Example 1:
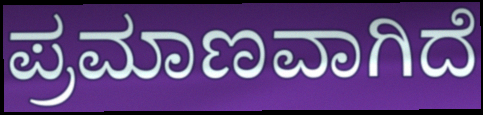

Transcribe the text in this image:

ಪ್ರಮಾಣವಾಗಿದೆ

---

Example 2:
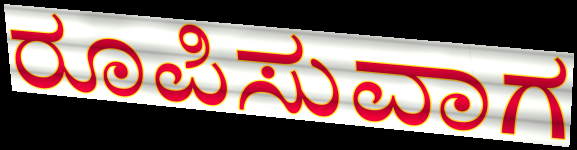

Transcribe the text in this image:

ರೂಪಿಸುವಾಗ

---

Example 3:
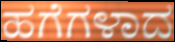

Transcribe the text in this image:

ಹಗೆಗಳಾದ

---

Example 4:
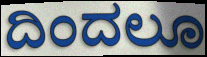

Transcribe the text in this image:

ದಿಂದಲೂ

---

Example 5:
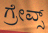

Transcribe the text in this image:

ಗ್ರೇವ್ಸ್